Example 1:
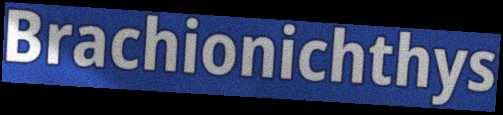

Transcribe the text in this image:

Brachionichthys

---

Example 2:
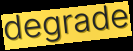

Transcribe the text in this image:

degrade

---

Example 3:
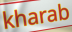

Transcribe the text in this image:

kharab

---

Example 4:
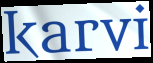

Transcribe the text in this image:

karvi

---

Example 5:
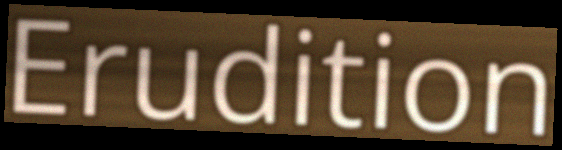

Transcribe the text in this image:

Erudition